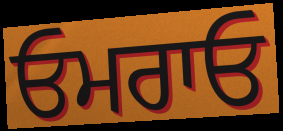
ਓਮਰਾਓ